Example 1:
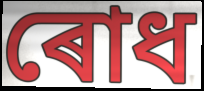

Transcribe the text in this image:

ৰোধ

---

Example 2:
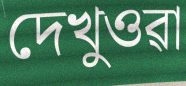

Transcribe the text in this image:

দেখুওৱা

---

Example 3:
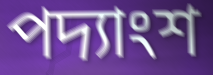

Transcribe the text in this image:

পদ্যাংশ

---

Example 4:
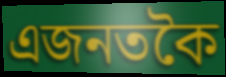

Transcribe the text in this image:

এজনতকৈ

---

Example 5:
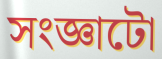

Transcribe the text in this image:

সংজ্ঞাটো